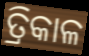
ତ୍ରିକାଳ